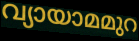
വ്യായാമമുറ